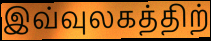
இவ்வுலகத்திற்